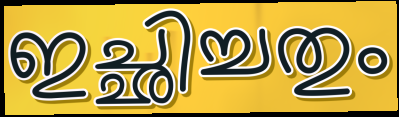
ഇച്ഛിച്ചതും